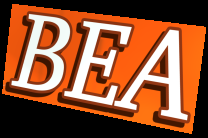
BEA